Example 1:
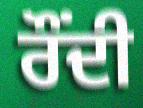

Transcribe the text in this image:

ਰੌਂਦੀ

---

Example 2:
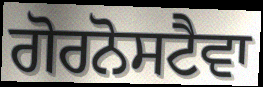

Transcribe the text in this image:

ਗੋਰਨੋਸਟੈਵਾ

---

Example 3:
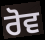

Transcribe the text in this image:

ਰੋਵ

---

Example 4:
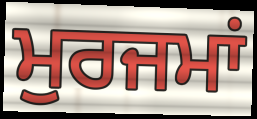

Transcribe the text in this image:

ਮੁਰਜਮਾਂ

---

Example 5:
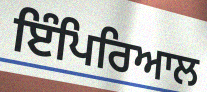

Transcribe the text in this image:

ਇੰਪਿਰਿਆਲ